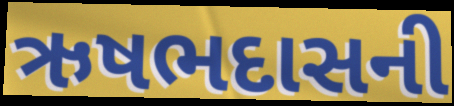
ઋષભદાસની